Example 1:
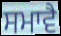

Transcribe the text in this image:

ਸਮਾਵੈ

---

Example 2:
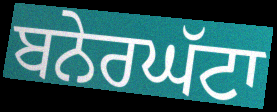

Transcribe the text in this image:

ਬਨੇਰਘੱਟਾ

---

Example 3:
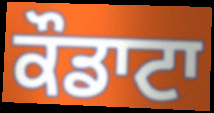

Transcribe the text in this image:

ਕੌਡਾਟਾ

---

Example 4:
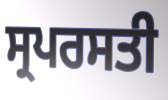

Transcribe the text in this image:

ਸ੍ਰਪਰਸਤੀ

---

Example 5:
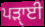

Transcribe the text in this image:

ਪੜਾੑਈ